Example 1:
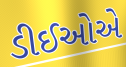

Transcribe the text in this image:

ડીઈઓએ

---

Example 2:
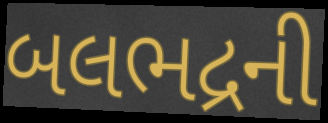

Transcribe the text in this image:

બલભદ્રની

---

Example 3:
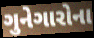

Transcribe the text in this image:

ગુનેગારોના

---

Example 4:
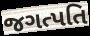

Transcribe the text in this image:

જગત્પતિ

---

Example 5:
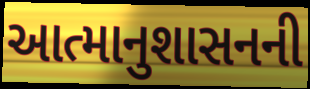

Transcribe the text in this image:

આત્માનુશાસનની